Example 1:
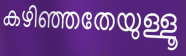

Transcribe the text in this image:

കഴിഞ്ഞതേയുള്ളൂ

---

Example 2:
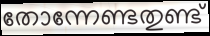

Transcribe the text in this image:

തോന്നേണ്ടതുണ്ട്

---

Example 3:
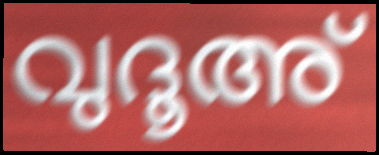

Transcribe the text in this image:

വുദൂഅ്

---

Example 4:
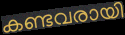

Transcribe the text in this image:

കണ്ടവരായി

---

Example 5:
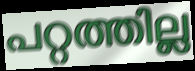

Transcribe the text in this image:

പറ്റത്തില്ല